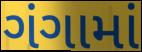
ગંગામાં